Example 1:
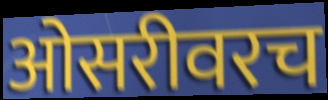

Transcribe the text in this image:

ओसरीवरच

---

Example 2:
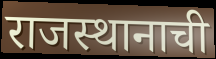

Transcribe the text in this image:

राजस्थानाची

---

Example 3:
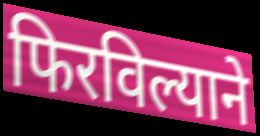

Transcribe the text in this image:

फिरविल्याने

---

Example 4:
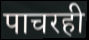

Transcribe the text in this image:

पाचरही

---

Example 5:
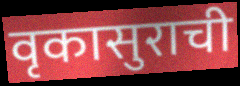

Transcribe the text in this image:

वृकासुराची